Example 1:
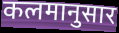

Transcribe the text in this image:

कलमानुसार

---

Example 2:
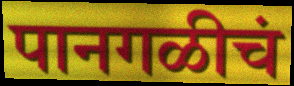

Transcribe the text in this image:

पानगळीचं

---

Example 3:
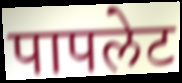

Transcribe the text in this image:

पापलेट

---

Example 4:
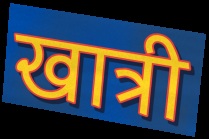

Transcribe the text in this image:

खात्री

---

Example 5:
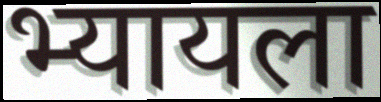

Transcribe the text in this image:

भ्यायला